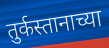
तुर्कस्तानाच्या